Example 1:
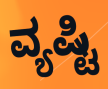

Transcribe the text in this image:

ವ್ಯಷ್ಟಿ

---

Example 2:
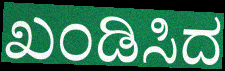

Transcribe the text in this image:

ಖಂಡಿಸಿದ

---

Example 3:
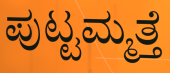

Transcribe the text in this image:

ಪುಟ್ಟಮ್ಮತ್ತೆ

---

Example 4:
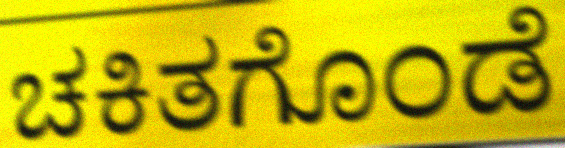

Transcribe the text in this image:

ಚಕಿತಗೊಂಡೆ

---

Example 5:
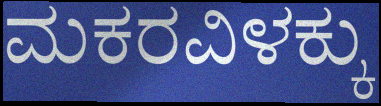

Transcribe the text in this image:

ಮಕರವಿಳಕ್ಕು